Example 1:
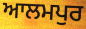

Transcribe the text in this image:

ਆਲਮਪੁਰ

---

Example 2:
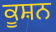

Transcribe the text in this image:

ਕੂਸ਼ਨ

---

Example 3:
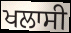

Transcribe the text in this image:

ਖਲਾਸੀ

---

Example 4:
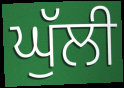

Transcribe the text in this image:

ਘੁੱਲੀ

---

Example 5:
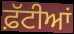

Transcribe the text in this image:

ਫ਼ੱਟੀਆਂ